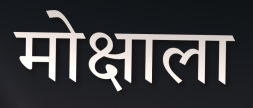
मोक्षाला